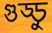
গুড্ডু